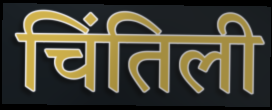
चिंतिली